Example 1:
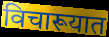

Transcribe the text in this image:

विचारूयात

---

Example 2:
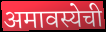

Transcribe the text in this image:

अमावस्येची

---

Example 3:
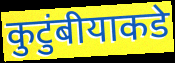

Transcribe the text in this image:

कुटुंबीयाकडे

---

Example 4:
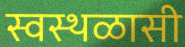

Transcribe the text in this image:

स्वस्थळासी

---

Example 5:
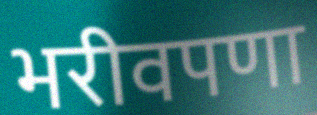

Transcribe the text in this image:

भरीवपणा